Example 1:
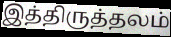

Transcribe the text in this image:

இத்திருத்தலம்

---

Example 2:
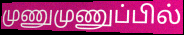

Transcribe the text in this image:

முணுமுணுப்பில்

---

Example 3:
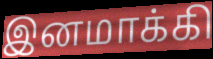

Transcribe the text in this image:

இனமாக்கி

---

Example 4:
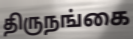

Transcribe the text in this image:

திருநங்கை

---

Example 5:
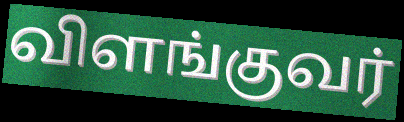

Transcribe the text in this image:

விளங்குவர்